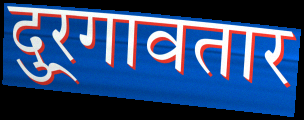
दुर्गावतार